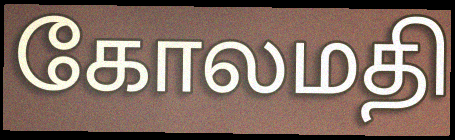
கோலமதி